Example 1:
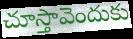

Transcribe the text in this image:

చూస్తావెందుకు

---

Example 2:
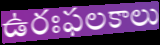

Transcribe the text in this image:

ఉరఃఫలకాలు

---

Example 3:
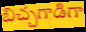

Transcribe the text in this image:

బిచ్చగాడిగా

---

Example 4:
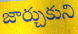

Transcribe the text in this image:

జార్చుకుని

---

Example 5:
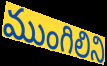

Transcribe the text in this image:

ముంగిలిని